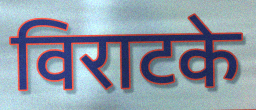
विराटके